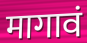
मागावं